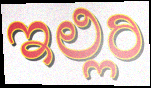
ಇಲ್ಲಿರಿ